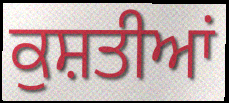
ਕੁਸ਼ਤੀਆਂ